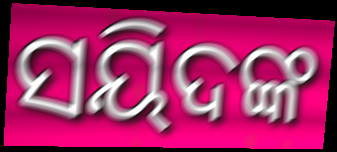
ସୟିଦଙ୍କ